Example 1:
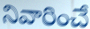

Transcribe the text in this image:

నివారించే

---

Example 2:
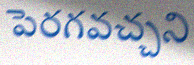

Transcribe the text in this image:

పెరగవచ్చని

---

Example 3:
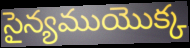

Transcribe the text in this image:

సైన్యముయొక్క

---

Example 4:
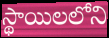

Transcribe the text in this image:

స్థాయిలలోని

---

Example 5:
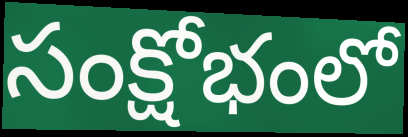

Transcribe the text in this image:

సంక్షోభంలో